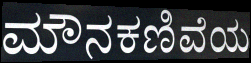
ಮೌನಕಣಿವೆಯ